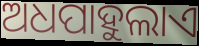
ଅଧପାହୁଲାଏ